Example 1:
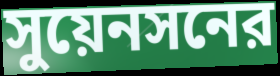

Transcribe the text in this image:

সুয়েনসনের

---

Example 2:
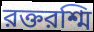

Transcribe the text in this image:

রক্তরশ্মি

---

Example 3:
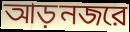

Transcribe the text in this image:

আড়নজরে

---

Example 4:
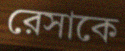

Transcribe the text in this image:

রেসাকে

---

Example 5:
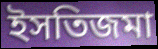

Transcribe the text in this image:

ইসতিজমা